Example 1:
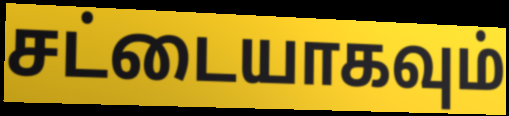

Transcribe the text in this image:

சட்டையாகவும்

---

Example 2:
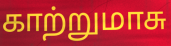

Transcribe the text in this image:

காற்றுமாசு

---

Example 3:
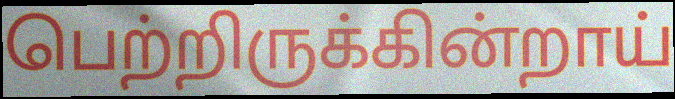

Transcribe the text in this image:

பெற்றிருக்கின்றாய்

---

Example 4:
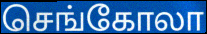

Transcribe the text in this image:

செங்கோலா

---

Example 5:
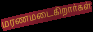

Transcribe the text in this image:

மரணமடைகிறார்கள்